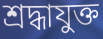
শ্রদ্ধাযুক্ত